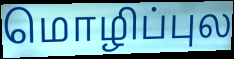
மொழிப்புல